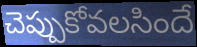
చెప్పుకోవలసిందే